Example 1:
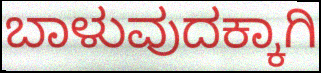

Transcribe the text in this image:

ಬಾಳುವುದಕ್ಕಾಗಿ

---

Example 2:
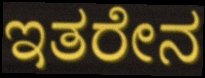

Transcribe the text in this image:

ಇತರೇನ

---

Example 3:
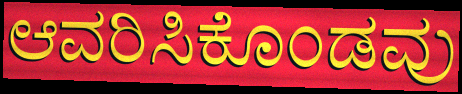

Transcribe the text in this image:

ಆವರಿಸಿಕೊಂಡವು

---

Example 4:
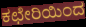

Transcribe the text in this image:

ಕಛೇರಿಯಿಂದ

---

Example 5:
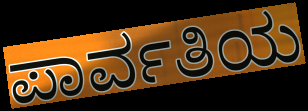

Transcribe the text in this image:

ಪಾರ್ವತಿಯ